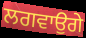
ਲਗਵਾਉਗੇ